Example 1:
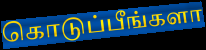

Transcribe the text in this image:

கொடுப்பீங்களா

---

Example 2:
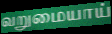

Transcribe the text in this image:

வறுமையாய்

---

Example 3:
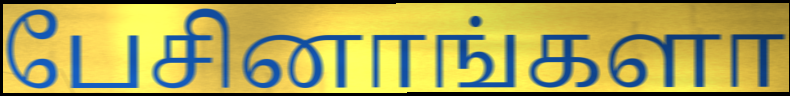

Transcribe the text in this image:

பேசினாங்களா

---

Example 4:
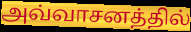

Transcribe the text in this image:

அவ்வாசனத்தில்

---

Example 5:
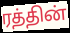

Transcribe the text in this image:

ரத்தின்